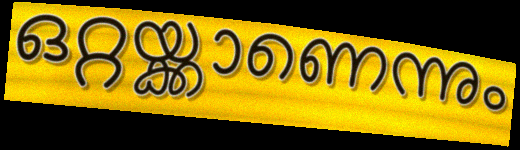
ഒറ്റയ്ക്കാണെന്നും